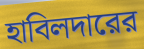
হাবিলদারের